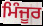
ਮਿੰਜੂਰ